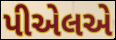
પીએલએ